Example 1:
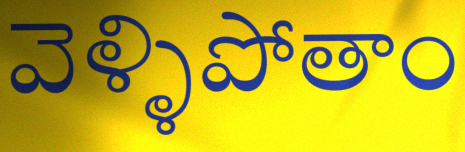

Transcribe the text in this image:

వెళ్ళిపోతాం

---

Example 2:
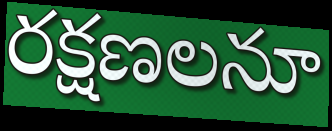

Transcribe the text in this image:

రక్షణలనూ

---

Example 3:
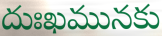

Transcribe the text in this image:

దుఃఖమునకు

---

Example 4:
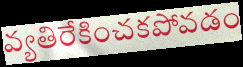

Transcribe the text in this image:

వ్యతిరేకించకపోవడం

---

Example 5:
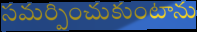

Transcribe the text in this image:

సమర్పించుకుంటాను